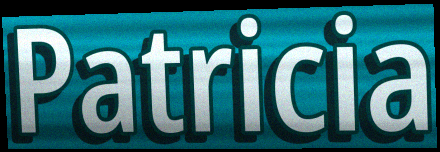
Patricia